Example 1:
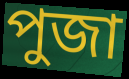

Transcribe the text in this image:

পুজা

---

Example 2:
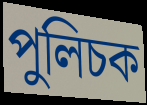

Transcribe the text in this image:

পুলিচক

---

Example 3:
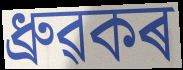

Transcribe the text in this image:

ধ্ৰুৱকৰ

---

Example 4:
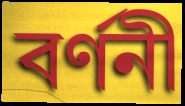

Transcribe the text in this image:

বৰ্ণনী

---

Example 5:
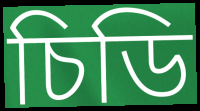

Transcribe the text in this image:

চিডি